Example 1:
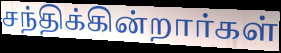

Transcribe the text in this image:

சந்திக்கின்றார்கள்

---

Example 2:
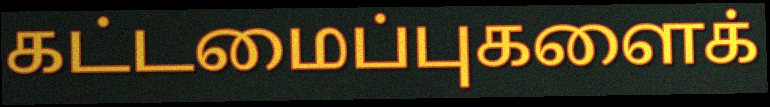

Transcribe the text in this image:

கட்டமைப்புகளைக்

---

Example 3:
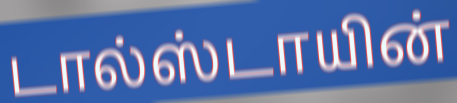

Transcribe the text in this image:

டால்ஸ்டாயின்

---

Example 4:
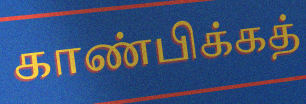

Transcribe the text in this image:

காண்பிக்கத்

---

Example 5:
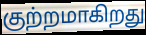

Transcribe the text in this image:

குற்றமாகிறது